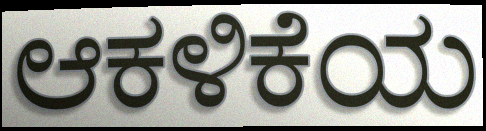
ಆಕಳಿಕೆಯ